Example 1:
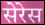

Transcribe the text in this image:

सेरेस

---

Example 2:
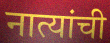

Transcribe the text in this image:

नात्यांची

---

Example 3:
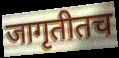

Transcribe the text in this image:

जागृतीतच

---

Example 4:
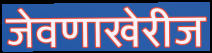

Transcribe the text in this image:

जेवणाखेरीज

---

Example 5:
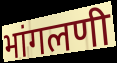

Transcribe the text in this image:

भांगलणी